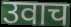
उवाच